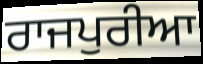
ਰਾਜਪੁਰੀਆ